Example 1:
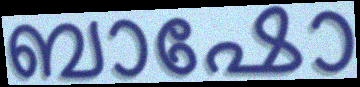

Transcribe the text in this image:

ബാഷോ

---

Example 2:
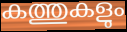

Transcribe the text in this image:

കത്തുകളും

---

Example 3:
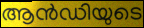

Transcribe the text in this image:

ആൻഡിയുടെ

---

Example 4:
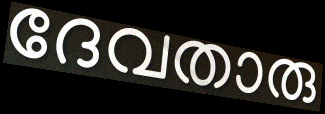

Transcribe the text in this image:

ദേവതാരു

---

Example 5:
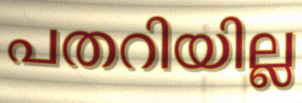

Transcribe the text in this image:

പതറിയില്ല